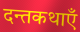
दन्तकथाएँ